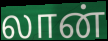
லான்